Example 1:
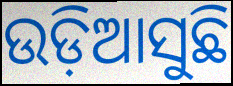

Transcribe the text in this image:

ଉଡ଼ିଆସୁଛି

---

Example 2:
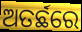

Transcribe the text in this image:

ଅତର୍ଛରେ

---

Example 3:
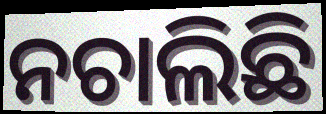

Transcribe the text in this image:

ନଚାଲିଛି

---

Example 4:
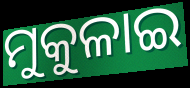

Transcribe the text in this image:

ମୁକୁଳାଇ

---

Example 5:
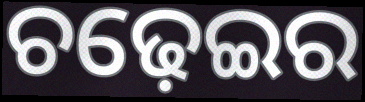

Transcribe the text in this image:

ଚଢ଼େଇର